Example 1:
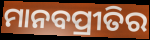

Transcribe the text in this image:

ମାନବପ୍ରୀତିର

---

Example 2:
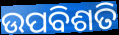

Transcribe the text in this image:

ଉପବିଶତି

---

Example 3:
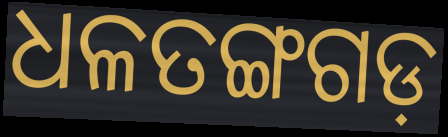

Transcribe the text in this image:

ଧଳତଙ୍ଗଗଡ଼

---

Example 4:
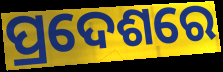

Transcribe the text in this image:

ପ୍ରଦେଶରେ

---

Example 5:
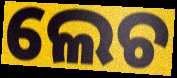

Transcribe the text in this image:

ଲେଚ